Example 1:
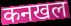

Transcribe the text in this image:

कनखल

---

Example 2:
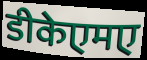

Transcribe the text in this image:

डीकेएमए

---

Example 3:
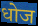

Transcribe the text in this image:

धोज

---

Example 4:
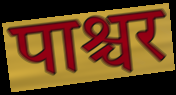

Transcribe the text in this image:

पाश्चर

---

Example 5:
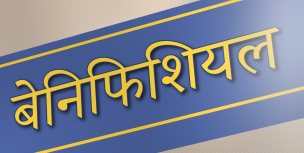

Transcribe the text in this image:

बेनिफिशियल